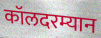
कॉलदरम्यान